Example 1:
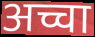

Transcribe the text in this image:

अच्चा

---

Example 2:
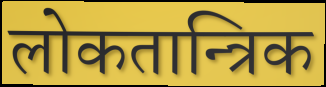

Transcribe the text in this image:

लोकतान्त्रिक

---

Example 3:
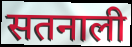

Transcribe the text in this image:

सतनाली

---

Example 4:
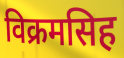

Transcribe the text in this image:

विक्रमसिह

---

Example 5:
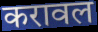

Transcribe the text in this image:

करावल